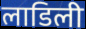
लाडिली